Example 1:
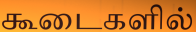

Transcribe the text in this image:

கூடைகளில்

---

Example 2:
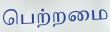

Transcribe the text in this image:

பெற்றமை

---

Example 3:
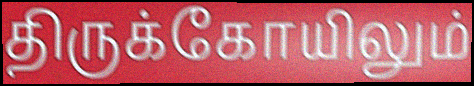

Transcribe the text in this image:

திருக்கோயிலும்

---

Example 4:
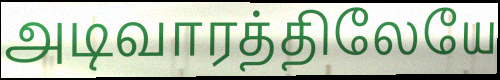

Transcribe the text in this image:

அடிவாரத்திலேயே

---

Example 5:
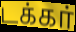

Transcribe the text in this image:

டக்கர்